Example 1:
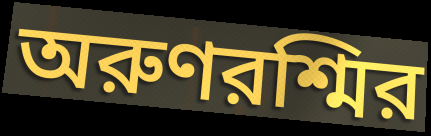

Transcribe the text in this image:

অরুণরশ্মির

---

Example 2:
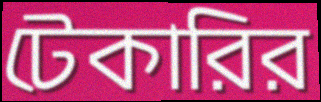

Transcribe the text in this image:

টেকারির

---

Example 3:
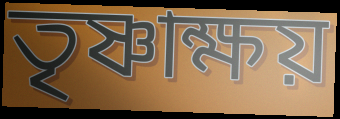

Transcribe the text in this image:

তৃষ্ণাক্ষয়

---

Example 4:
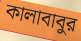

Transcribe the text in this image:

কালাবাবুর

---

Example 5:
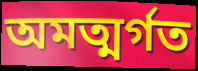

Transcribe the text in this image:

অমত্মর্গত